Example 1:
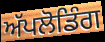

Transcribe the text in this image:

ਅੱਪਲੋਡਿੰਗ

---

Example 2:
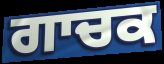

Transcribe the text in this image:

ਗਾਚਕ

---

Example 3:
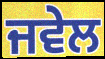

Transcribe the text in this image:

ਜਵੇਲ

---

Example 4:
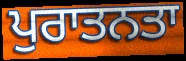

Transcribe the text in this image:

ਪੁਰਾਤਨਤਾ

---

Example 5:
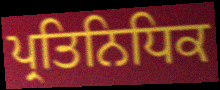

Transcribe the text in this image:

ਪ੍ਰਤਿਨਿਧਿਕ